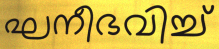
ഘനീഭവിച്ച്